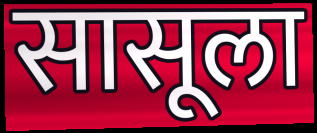
सासूला